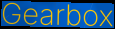
Gearbox